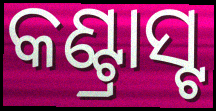
କଣ୍ଟ୍ରାସ୍ଟ